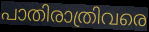
പാതിരാത്രിവരെ